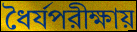
ধৈর্যপরীক্ষায়